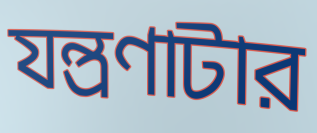
যন্ত্রণাটার